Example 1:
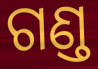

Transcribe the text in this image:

ଗଣ୍ଡ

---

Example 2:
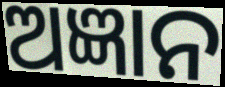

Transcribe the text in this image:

ଅଜ୍ଞାନ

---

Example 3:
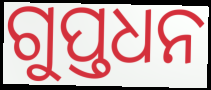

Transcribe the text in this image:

ଗୁପ୍ତଧନ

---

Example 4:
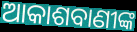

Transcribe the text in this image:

ଆକାଶବାଣୀଙ୍କ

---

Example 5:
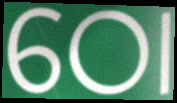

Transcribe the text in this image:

ଠୋ